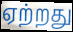
ஏற்றது